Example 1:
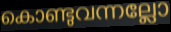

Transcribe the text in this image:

കൊണ്ടുവന്നല്ലോ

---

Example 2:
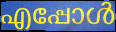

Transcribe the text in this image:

എപ്പോൾ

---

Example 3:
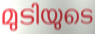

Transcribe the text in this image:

മുടിയുടെ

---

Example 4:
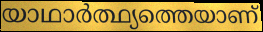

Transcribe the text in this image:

യാഥാർത്ഥ്യത്തെയാണ്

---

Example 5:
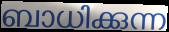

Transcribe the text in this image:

ബാധിക്കുന്ന